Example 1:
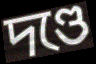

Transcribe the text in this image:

দণ্ডে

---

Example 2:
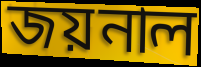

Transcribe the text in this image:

জয়নাল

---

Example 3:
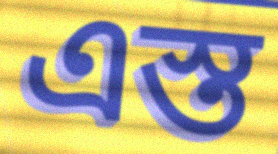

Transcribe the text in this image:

এস্ত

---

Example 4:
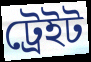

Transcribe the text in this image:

ট্রেইট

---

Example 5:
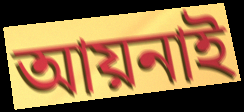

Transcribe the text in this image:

আয়নাই